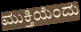
ಮುಕ್ತಿಯೆಂದು